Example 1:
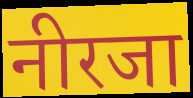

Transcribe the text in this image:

नीरजा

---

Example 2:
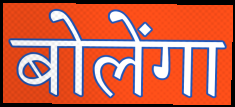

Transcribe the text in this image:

बोलेंगा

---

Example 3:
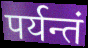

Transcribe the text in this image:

पर्यन्तं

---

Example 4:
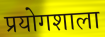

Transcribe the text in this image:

प्रयोगशाला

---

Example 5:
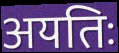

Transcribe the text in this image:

अयतिः